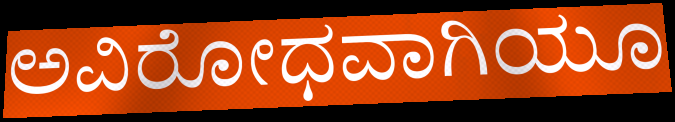
ಅವಿರೋಧವಾಗಿಯೂ